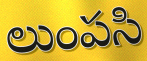
లుంపసి